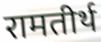
रामतीर्थ